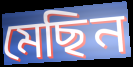
মেছিন